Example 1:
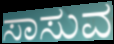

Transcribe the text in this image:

ಸಾಸುವ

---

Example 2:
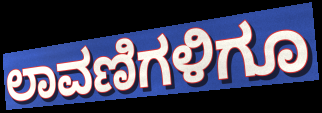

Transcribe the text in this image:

ಲಾವಣಿಗಳಿಗೂ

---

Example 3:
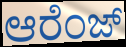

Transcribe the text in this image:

ಆರೆಂಜ್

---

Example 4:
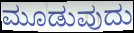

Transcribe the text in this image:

ಮೂಡುವುದು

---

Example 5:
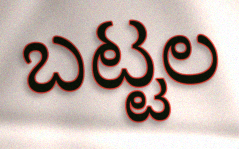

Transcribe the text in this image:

ಬಟ್ಟಲ